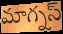
మాగ్నస్